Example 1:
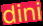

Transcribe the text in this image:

dini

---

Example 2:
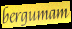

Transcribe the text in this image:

bergumam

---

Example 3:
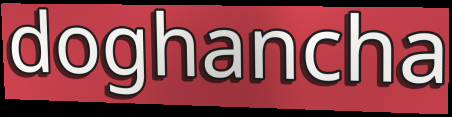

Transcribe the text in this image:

doghancha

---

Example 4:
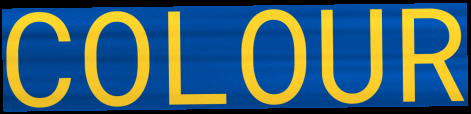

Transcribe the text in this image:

COLOUR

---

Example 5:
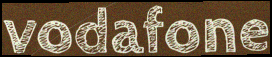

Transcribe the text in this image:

vodafone